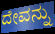
ದೇವನ್ನು